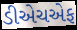
ડીએચએફ